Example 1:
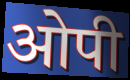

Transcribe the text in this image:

ओपी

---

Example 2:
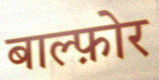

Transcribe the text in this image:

बाल्फ़ोर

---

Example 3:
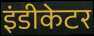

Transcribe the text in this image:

इंडीकेटर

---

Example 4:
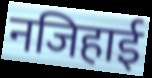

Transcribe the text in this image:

नजिहाई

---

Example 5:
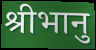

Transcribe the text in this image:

श्रीभानु